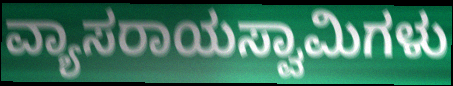
ವ್ಯಾಸರಾಯಸ್ವಾಮಿಗಳು